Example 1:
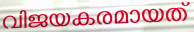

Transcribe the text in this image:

വിജയകരമായത്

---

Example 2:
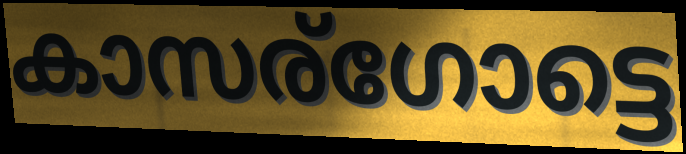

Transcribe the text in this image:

കാസര്ഗോട്ടെ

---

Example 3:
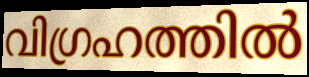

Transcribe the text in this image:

വിഗ്രഹത്തിൽ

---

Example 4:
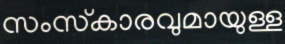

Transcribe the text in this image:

സംസ്‌കാരവുമായുള്ള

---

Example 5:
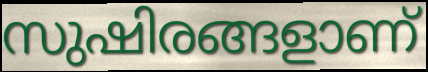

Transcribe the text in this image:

സുഷിരങ്ങളാണ്